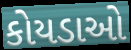
કોયડાઓ